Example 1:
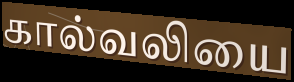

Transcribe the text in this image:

கால்வலியை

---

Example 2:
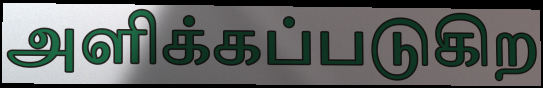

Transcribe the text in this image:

அளிக்கப்படுகிற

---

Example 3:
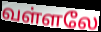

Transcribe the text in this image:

வள்ளலே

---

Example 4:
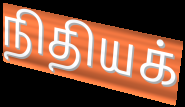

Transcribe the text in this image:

நிதியக்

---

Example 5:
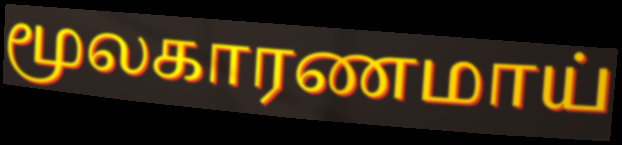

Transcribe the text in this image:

மூலகாரணமாய்